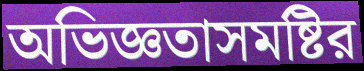
অভিজ্ঞতাসমষ্টির